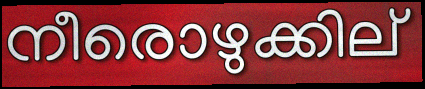
നീരൊഴുക്കില്